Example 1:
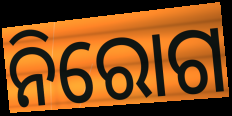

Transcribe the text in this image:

ନିରୋଗ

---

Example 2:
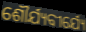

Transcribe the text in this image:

ଶୌର୍ଯ୍ୟବୀର୍ଯ୍ୟେ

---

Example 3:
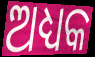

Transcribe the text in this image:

ଅଧ୍ଯକ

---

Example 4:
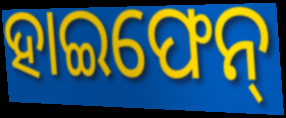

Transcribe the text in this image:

ହାଇଫେନ୍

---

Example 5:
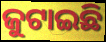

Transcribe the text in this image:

ଜୁଟାଇଛି